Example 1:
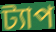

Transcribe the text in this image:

ট্যাপ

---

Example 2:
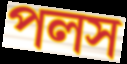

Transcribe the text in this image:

পলস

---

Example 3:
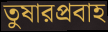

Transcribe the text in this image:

তুষারপ্রবাহ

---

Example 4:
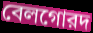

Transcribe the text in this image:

বেলগোরদ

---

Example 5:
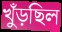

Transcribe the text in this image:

খুঁড়ছিল